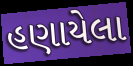
હણાયેલા